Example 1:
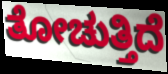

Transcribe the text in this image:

ತೋಚುತ್ತಿದೆ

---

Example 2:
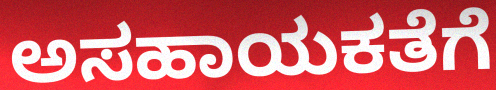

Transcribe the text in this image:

ಅಸಹಾಯಕತೆಗೆ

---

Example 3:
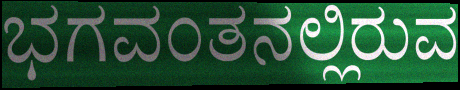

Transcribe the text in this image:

ಭಗವಂತನಲ್ಲಿರುವ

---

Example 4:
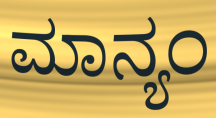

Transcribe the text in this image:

ಮಾನ್ಯಂ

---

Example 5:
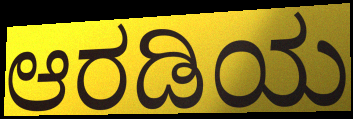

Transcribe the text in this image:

ಆರಡಿಯ